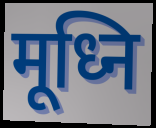
मूध्नि